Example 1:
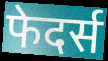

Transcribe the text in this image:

फेदर्स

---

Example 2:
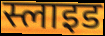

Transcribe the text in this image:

स्लाइड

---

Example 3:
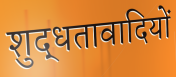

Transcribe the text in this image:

शुद्धतावादियों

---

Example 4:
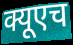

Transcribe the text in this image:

क्यूएच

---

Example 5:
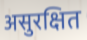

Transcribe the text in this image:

असुरक्षित